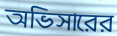
অভিসারের